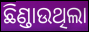
ଛିଣ୍ଡାଉଥିଲା